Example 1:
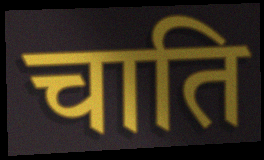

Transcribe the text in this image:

चाति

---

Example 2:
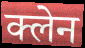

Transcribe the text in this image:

क्लेन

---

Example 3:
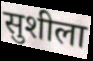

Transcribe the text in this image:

सुशीला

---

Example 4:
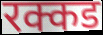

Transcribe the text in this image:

रक्कड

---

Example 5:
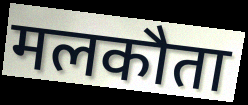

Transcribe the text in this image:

मलकौता